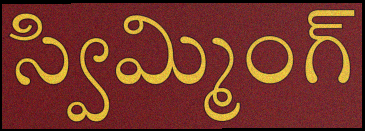
స్విమ్మింగ్